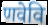
णवेवि